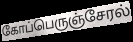
கோப்பெருஞ்சேரல்